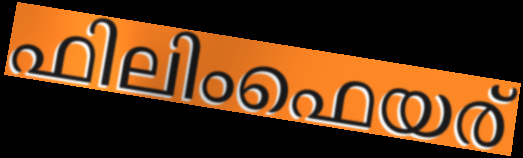
ഫിലിംഫെയര്